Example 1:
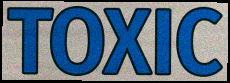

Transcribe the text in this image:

TOXIC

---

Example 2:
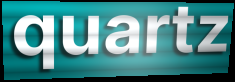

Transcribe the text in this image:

quartz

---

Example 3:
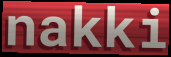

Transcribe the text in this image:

nakki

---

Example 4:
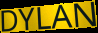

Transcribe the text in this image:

DYLAN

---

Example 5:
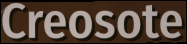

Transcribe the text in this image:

Creosote